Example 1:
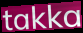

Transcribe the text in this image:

takka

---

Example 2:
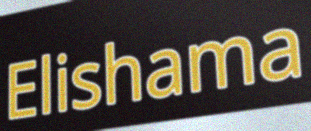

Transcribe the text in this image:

Elishama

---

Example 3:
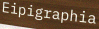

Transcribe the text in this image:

Eipigraphia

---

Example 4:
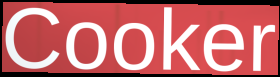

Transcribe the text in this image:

Cooker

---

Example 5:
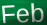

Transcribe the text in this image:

Feb